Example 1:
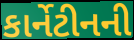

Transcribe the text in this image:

કાર્નેટીનની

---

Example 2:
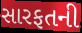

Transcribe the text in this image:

સારફતની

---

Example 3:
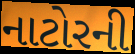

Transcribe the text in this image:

નાટોરની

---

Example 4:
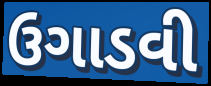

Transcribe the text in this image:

ઉગાડવી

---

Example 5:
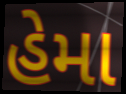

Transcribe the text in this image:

હેમા